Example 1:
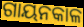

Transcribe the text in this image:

ଗାୟନକାଳ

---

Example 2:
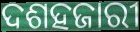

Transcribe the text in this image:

ଦଶହଜାରୀ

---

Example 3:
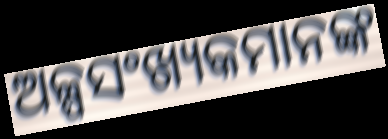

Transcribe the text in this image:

ଅଳ୍ପସଂଖ୍ୟକମାନଙ୍କ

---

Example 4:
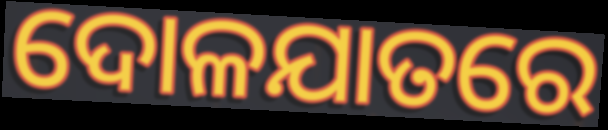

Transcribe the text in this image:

ଦୋଳଯାତରେ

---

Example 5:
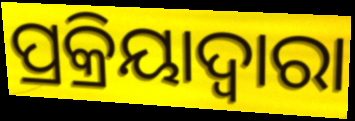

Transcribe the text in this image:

ପ୍ରକ୍ରିୟାଦ୍ଵାରା